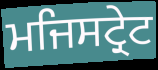
ਮਜਿਸਟ੍ਰੇਟ